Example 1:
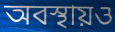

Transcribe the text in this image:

অবস্থায়ও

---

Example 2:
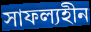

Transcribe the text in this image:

সাফল্যহীন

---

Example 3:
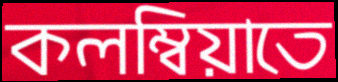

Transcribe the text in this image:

কলম্বিয়াতে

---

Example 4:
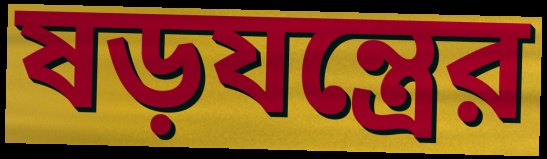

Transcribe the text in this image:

ষড়যন্ত্রের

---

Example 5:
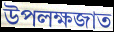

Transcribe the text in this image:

উপলক্ষজাত